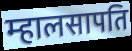
म्हालसापति